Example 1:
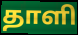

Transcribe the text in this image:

தாளி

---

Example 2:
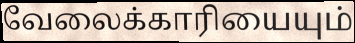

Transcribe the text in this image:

வேலைக்காரியையும்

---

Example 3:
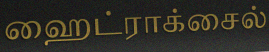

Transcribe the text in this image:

ஹைட்ராக்சைல்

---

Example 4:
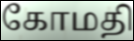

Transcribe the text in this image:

கோமதி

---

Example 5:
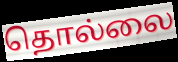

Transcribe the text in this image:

தொல்லை